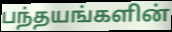
பந்தயங்களின்